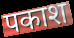
पकाश